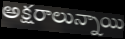
అక్షరాలున్నాయి